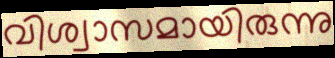
വിശ്വാസമായിരുന്നു